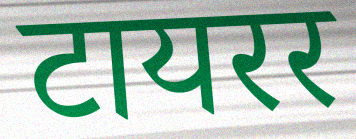
टायरर